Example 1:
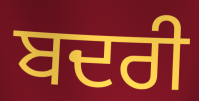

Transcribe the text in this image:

ਬਦਰੀ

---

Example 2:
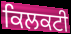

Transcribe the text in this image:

ਕਿਲਕਟੀ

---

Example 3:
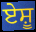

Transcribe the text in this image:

ਏਸ਼ੂ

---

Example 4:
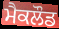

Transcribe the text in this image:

ਮੈਕਲੌਡ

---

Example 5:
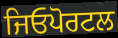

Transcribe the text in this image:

ਜਿਓਪੋਰਟਲ